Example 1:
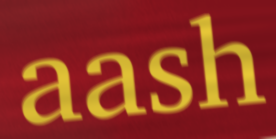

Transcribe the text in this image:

aash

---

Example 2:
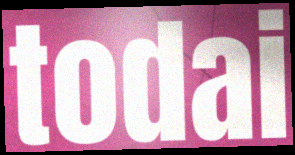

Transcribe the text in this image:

todai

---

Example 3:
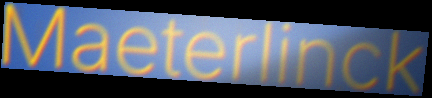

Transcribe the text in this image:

Maeterlinck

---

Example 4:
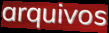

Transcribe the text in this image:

arquivos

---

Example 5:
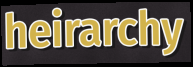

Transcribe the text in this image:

heirarchy